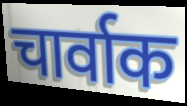
चार्वाक